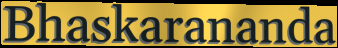
Bhaskarananda